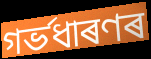
গৰ্ভধাৰণৰ